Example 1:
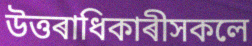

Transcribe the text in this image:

উত্তৰাধিকাৰীসকলে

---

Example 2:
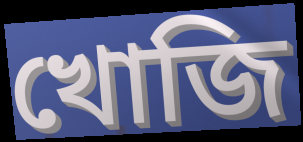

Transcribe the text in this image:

খোজি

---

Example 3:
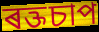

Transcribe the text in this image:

ৰক্তচাপ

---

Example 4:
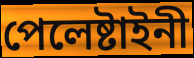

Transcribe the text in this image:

পেলেষ্টাইনী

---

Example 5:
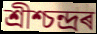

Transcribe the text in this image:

শ্ৰীশ্চন্দ্ৰৰ